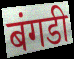
बंगडी